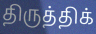
திருத்திக்